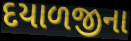
દયાળજીના